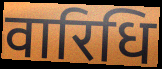
वारिधि